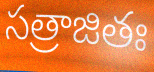
సత్రాజితః